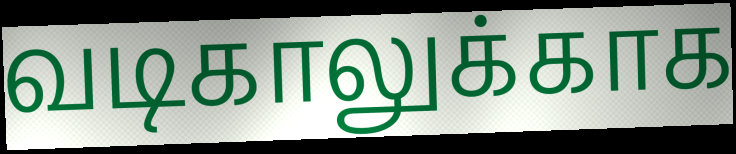
வடிகாலுக்காக